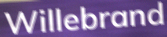
Willebrand